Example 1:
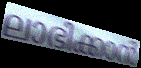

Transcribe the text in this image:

ലാഭിക്കാൻ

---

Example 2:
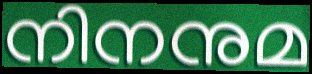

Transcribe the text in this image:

നിനനുമ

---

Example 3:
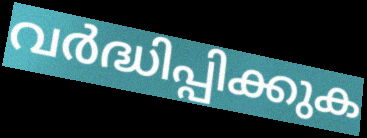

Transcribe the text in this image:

വർദ്ധിപ്പിക്കുക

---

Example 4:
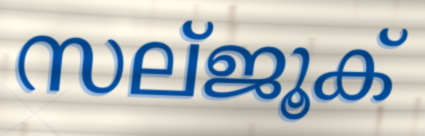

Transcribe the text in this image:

സല്ജൂക്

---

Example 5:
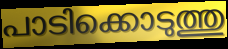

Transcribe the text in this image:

പാടിക്കൊടുത്തു